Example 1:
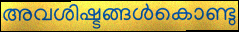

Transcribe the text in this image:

അവശിഷ്ടങ്ങൾകൊണ്ടു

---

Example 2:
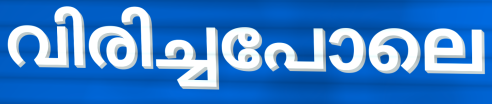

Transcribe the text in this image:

വിരിച്ചപോലെ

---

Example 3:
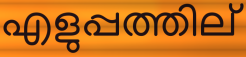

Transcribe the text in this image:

എളുപ്പത്തില്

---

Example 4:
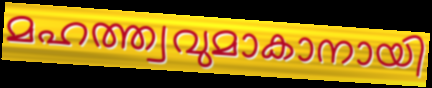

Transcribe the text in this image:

മഹത്ത്വവുമാകാനായി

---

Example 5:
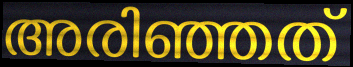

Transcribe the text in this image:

അരിഞ്ഞത്